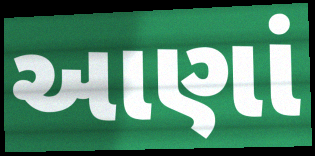
આણાં